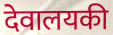
देवालयकी